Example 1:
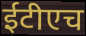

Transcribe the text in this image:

ईटीएच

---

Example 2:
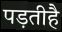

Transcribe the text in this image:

पड़तीहै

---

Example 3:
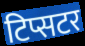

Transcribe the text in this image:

टिप्सटर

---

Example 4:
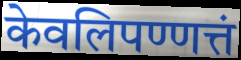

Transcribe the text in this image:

केवलिपण्णत्तं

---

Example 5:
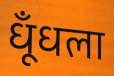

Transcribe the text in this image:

धूँधला